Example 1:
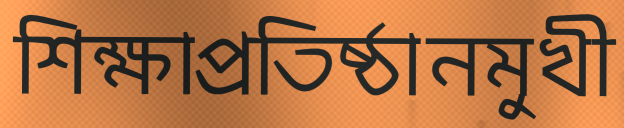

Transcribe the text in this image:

শিক্ষাপ্রতিষ্ঠানমুখী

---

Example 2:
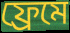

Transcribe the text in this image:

ফ্রেমে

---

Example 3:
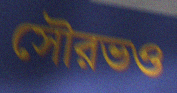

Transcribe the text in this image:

সৌরভও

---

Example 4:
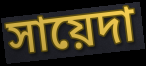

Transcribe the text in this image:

সায়েদা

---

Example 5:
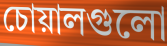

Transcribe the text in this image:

চোয়ালগুলো